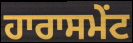
ਹਾਰਾਸਮੇਂਟ